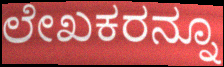
ಲೇಖಕರನ್ನೂ